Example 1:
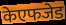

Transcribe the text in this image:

केएफजेड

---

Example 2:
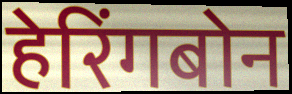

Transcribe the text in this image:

हेरिंगबोन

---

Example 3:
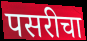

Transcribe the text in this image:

पसरीचा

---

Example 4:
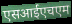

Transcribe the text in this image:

एसआईएचएम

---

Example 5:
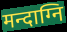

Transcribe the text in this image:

मन्दाग्नि